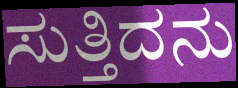
ಸುತ್ತಿದನು